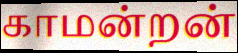
காமன்றன்